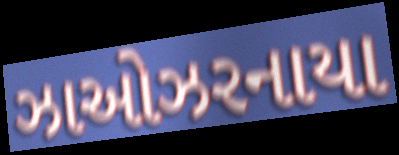
ઝાઓઝરનાયા